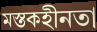
মস্তকহীনতা